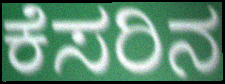
ಕೆಸರಿನ